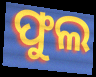
ଫୁଲ